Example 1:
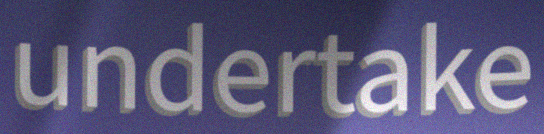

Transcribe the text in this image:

undertake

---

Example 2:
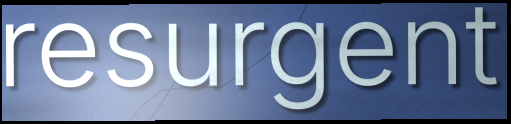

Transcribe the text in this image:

resurgent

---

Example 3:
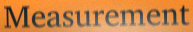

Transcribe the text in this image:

Measurement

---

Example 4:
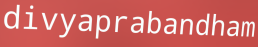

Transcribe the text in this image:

divyaprabandham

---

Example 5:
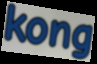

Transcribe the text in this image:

kong